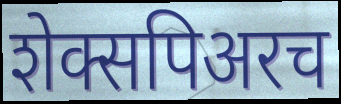
शेक्सपिअरच